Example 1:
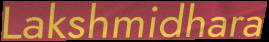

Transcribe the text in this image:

Lakshmidhara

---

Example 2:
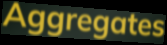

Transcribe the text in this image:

Aggregates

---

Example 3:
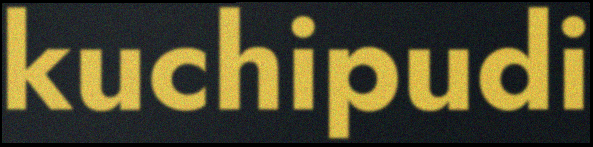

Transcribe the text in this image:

kuchipudi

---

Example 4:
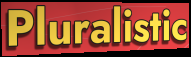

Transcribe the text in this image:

Pluralistic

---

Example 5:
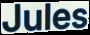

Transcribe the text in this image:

Jules